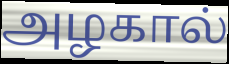
அழகால்